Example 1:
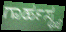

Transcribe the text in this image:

ಗಾರ್ಹಸ್ಥ್ಯ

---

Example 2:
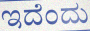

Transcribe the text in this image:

ಇದೆಂದು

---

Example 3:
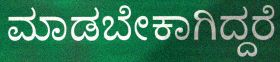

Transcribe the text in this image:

ಮಾಡಬೇಕಾಗಿದ್ದರೆ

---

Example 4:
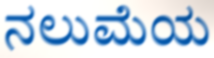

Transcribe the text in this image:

ನಲುಮೆಯ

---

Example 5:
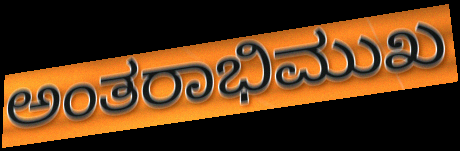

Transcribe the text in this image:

ಅಂತರಾಭಿಮುಖ